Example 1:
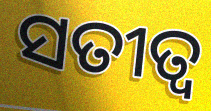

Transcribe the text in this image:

ସତୀତ୍ଵ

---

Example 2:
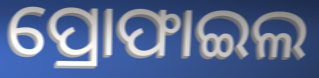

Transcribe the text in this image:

ପ୍ରୋଫାଇଲ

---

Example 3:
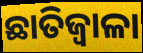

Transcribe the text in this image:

ଛାତିଜ୍ୱାଳା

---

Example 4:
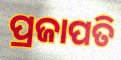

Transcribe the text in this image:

ପ୍ରଜାପତି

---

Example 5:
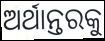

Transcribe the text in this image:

ଅର୍ଥାନ୍ତରକୁ